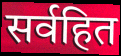
सर्वहित